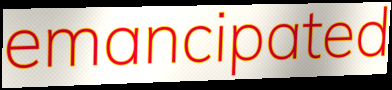
emancipated